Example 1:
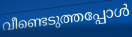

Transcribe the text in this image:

വീണ്ടെടുത്തപ്പോൾ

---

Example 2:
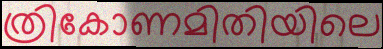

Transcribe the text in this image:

ത്രികോണമിതിയിലെ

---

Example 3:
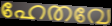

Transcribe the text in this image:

ഹേതവേ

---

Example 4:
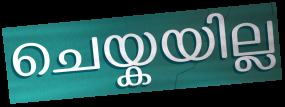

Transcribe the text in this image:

ചെയ്കയില്ല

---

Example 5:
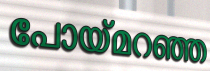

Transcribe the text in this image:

പോയ്മറഞ്ഞ